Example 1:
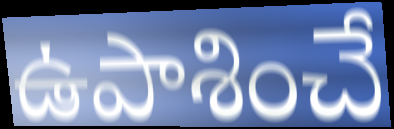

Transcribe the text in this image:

ఉపాశించే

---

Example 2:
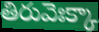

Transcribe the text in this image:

తిరువెఃక్కా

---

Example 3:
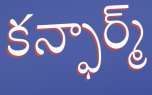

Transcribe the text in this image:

కన్ఫార్మ్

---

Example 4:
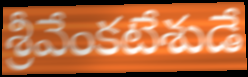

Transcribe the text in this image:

శ్రీవేంకటేశుడే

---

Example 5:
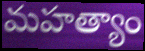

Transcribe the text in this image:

మహత్యాం